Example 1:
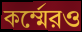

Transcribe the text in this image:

কর্ম্মেরও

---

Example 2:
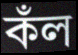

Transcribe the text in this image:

কঁল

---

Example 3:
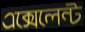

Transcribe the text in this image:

এক্সেলেন্ট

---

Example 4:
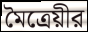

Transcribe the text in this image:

মৈত্রেয়ীর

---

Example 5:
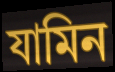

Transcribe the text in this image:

যামিন